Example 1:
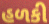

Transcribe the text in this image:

હળકી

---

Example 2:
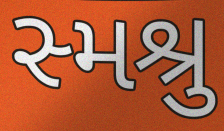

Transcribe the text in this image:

સ્મશ્રુ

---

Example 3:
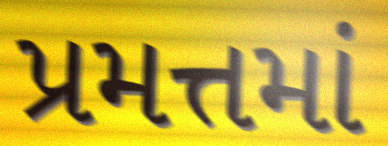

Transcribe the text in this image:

પ્રમત્તમાં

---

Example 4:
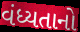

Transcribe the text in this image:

વંધ્યતાનો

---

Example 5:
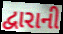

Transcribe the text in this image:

દ્વારાની